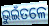
ଭୁଇଁତଳେ